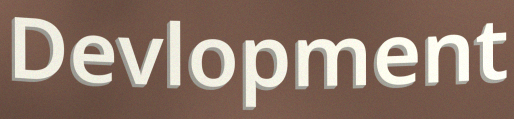
Devlopment